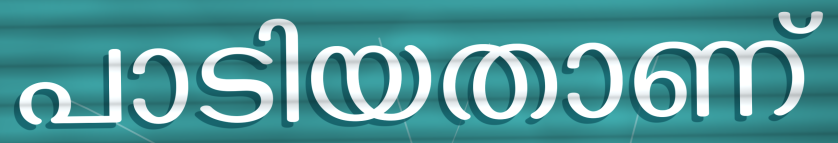
പാടിയതാണ്